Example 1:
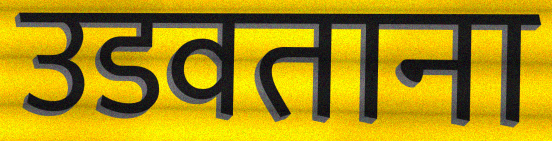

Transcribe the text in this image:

उडवताना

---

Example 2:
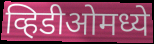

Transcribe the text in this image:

व्हिडीओमध्ये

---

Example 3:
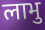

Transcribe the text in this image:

लाभु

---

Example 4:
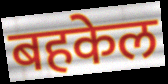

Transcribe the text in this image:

बहकेल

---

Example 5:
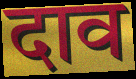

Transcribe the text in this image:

दाव